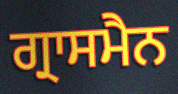
ਗ੍ਰਾਸਮੈਨ